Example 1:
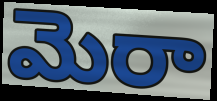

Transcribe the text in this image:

మెరా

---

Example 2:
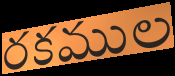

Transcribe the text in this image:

రకముల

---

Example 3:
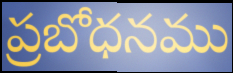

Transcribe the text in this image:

ప్రబోధనము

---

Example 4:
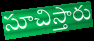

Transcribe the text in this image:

సూచిస్తారు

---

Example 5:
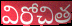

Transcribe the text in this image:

విరోచిత